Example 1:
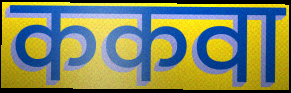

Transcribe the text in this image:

ककवा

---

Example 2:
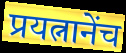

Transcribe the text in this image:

प्रयत्नानेंच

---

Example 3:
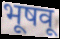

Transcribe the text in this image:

भूषवू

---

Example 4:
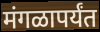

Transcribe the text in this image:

मंगळापर्यंत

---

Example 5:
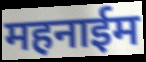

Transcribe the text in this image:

महनाईम